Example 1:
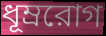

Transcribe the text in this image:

ধূম্ররোগ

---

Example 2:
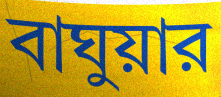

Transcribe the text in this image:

বাঘুয়ার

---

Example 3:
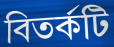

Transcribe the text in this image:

বিতর্কটি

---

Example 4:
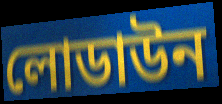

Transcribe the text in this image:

লোডাউন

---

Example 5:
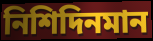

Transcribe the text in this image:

নিশিদিনমান